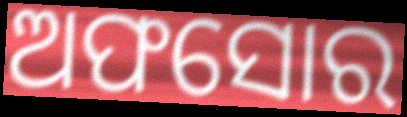
ଅଫସୋର